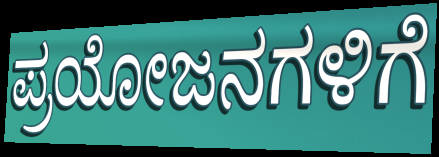
ಪ್ರಯೋಜನಗಳಿಗೆ